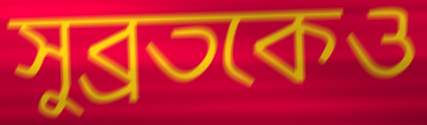
সুব্রতকেও